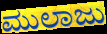
ಮುಲಾಜು